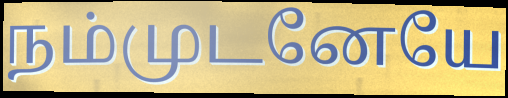
நம்முடனேயே